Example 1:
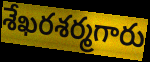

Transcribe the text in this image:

శేఖరశర్మగారు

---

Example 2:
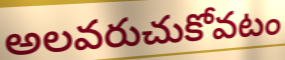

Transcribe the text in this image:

అలవరుచుకోవటం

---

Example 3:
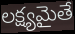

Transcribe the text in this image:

లక్ష్యమైతే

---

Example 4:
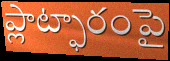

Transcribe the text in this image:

ప్లాట్ఫారంపై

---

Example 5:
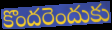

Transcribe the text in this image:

కొందరెందుకు